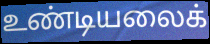
உண்டியலைக்